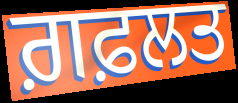
ਗ਼ਫ਼ਲਤ